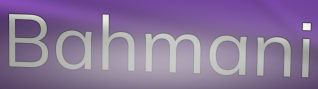
Bahmani